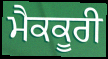
ਮੈਕਕੂਰੀ